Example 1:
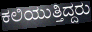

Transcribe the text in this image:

ಕಲಿಯುತ್ತಿದ್ದರು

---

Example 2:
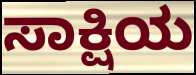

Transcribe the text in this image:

ಸಾಕ್ಷಿಯ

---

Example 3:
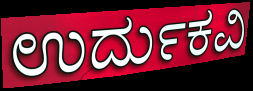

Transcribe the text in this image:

ಉರ್ದುಕವಿ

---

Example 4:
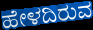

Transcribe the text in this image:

ಹೇಳದಿರುವ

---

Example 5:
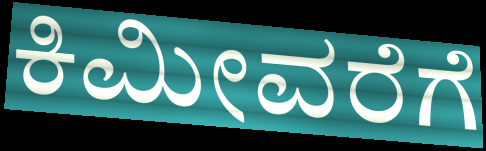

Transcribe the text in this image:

ಕಿಮೀವರೆಗೆ